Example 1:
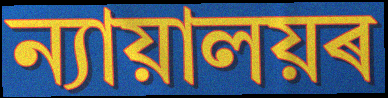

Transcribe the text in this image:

ন্যায়ালয়ৰ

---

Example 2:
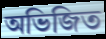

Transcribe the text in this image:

অভিজিত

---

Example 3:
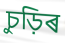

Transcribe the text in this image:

চুড়িৰ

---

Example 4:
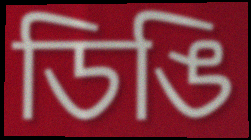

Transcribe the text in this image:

ডিঙি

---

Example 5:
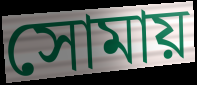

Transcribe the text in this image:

সোমায়